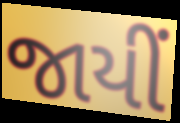
જાયીં